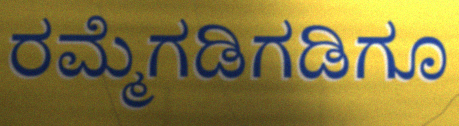
ರಮ್ಮೆಗಡಿಗಡಿಗೂ